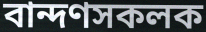
বান্দণসকলক